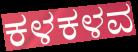
ಕಳಕಳವ